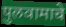
पुलवामाचे